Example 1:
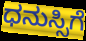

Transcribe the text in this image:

ಧನುಸ್ಸಿಗೆ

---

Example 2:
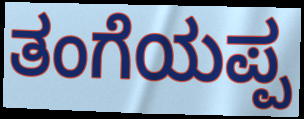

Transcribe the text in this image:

ತಂಗೆಯಪ್ಪ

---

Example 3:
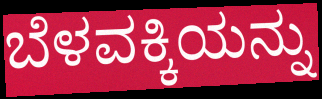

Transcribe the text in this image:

ಬೆಳವಕ್ಕಿಯನ್ನು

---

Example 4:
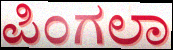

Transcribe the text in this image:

ಪಿಂಗಲಾ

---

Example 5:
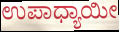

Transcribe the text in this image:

ಉಪಾಧ್ಯಾಯೀ